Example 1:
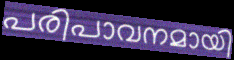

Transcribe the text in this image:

പരിപാവനമായി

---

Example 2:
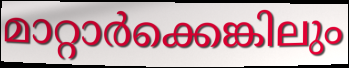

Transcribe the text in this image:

മാറ്റാർക്കെങ്കിലും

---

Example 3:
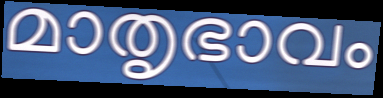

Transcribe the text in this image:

മാതൃഭാവം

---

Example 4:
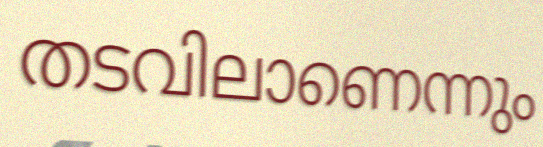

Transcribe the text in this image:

തടവിലാണെന്നും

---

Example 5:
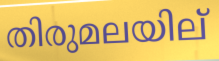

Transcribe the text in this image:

തിരുമലയില്